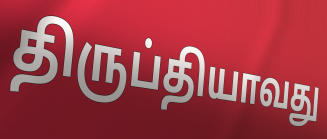
திருப்தியாவது